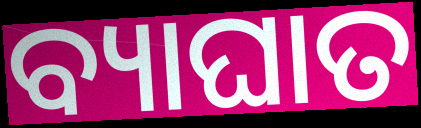
ବ୍ୟାଘାତ